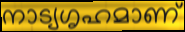
നാട്യഗൃഹമാണ്